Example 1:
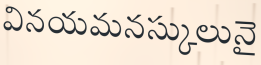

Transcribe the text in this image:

వినయమనస్కులునై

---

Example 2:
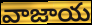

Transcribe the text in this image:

వాజాయ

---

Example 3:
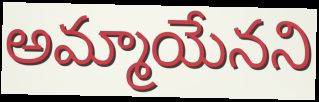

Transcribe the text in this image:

అమ్మాయేనని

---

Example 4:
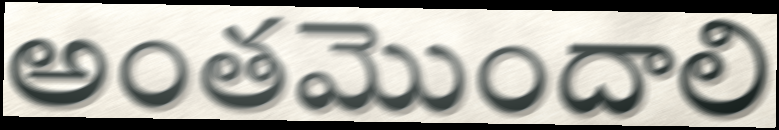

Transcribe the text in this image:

అంతమొందాలి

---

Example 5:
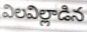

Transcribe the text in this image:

విలవిల్లాడిన